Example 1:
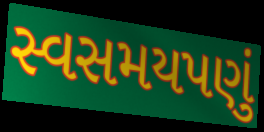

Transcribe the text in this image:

સ્વસમયપણું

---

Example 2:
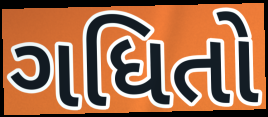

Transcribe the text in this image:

ગધિતો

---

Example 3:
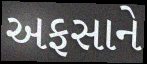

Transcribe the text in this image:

અફસાને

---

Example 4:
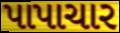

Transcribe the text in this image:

પાપાચાર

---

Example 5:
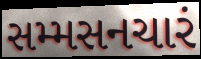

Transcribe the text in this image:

સમ્મસનચારં